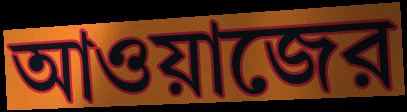
আওয়াজের